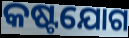
କଷ୍ଟଯୋଗ